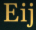
Eij